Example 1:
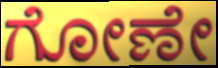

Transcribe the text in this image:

ಗೋಣೇ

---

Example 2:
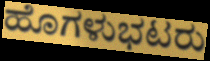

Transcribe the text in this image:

ಹೊಗಳುಭಟರು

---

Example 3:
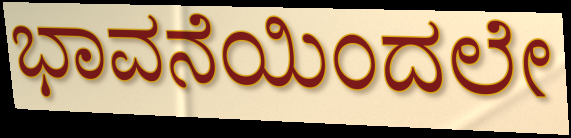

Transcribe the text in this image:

ಭಾವನೆಯಿಂದಲೇ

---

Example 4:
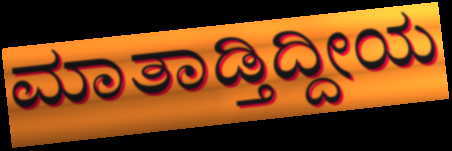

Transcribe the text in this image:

ಮಾತಾಡ್ತಿದ್ದೀಯ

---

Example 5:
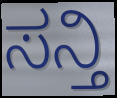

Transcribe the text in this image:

ಸನ್ತಿ